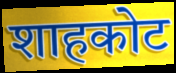
शाहकोट